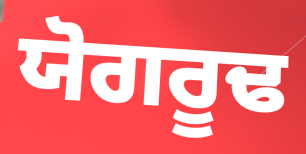
ਯੋਗਰੂਢ